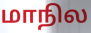
மாநில